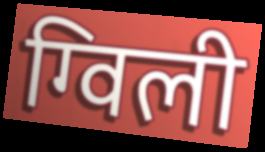
ग्विली